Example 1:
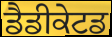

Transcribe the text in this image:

ਡੈਡੀਕੇਟਡ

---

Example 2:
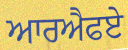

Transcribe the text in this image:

ਆਰਐਫਏ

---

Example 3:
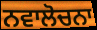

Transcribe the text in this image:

ਨਵਾਲੋਚਨਾ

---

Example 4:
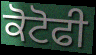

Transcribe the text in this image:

ਕੋਟੋਫੀ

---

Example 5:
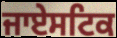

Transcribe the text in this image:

ਜਾਏਸਟਿਕ